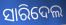
ସାରିଦେଲ